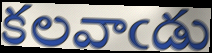
కలవాఁడు